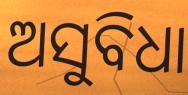
ଅସୁବିଧା